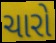
ચારો